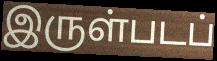
இருள்படப்